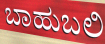
ಬಾಹುಬಲಿ